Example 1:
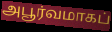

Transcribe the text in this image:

அபூர்வமாகப்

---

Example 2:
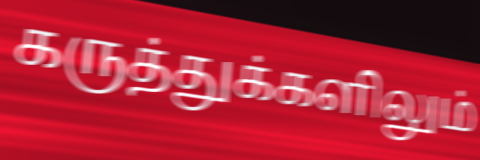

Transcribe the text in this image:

கருத்துக்களிலும்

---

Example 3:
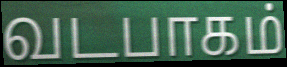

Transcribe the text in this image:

வடபாகம்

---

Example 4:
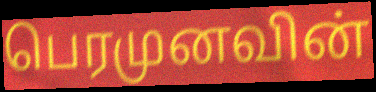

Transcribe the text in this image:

பெரமுனவின்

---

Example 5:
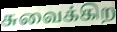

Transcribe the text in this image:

சுவைக்கிற